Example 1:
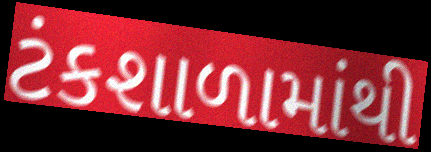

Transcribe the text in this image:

ટંકશાળામાંથી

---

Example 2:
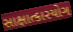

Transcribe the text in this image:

સાક્ષાત્કારયોગ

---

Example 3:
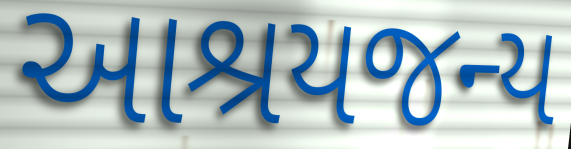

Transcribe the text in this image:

આશ્રયજન્ય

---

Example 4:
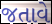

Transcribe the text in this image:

જતાવે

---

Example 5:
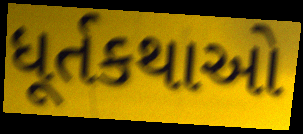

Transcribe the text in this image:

ધૂર્તકથાઓ